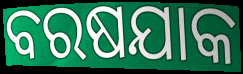
ବରଷଯାକ